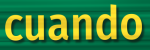
cuando